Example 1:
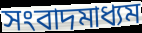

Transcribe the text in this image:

সংবাদমাধ্যম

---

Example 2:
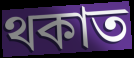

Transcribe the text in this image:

থকাত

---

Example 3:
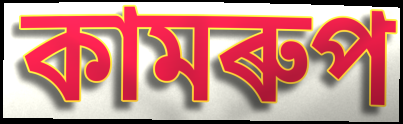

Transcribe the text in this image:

কামৰুপ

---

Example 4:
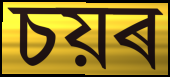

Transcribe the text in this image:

চয়ৰ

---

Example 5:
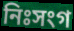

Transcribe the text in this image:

নিঃসংগ